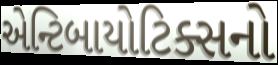
એન્ટિબાયોટિક્સનો